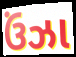
ઉંઝા